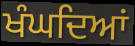
ਖੰਘਦਿਆਂ